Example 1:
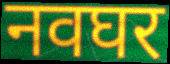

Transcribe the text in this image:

नवघर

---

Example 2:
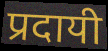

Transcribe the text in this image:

प्रदायी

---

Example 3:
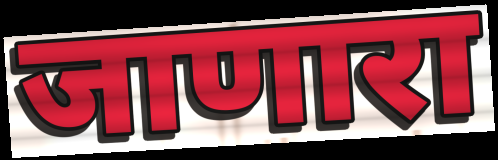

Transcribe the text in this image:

जाणारा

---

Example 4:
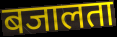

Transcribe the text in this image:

बजालता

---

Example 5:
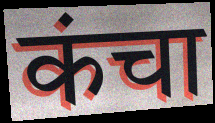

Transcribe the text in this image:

कंचा